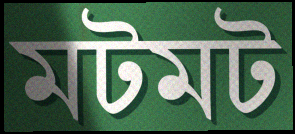
মটমট